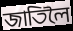
জাতিলৈ